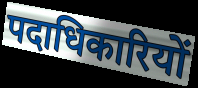
पदाधिकारियों